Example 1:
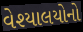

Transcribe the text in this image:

વેશ્યાલયોનો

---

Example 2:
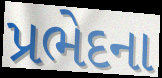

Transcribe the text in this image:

પ્રભેદના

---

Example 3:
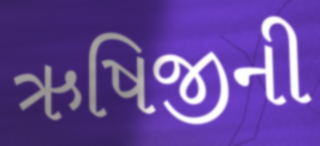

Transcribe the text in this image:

ઋષિજીની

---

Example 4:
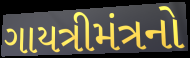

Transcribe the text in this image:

ગાયત્રીમંત્રનો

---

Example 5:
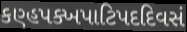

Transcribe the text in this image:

કણ્હપક્ખપાટિપદદિવસં